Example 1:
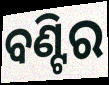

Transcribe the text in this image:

ବଣ୍ଟିର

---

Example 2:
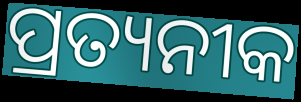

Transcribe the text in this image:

ପ୍ରତ୍ୟନୀକ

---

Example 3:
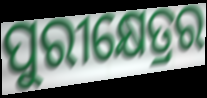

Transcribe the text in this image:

ପୁରୀକ୍ଷେତ୍ରର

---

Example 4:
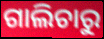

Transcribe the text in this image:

ଗାଲିଚାରୁ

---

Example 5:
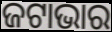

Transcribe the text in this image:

ଜଟାଭାର